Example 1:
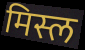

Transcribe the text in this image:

मिस्ल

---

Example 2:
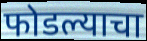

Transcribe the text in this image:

फोडल्याचा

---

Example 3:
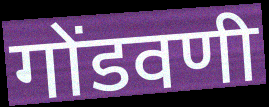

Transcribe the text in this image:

गोंडवणी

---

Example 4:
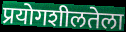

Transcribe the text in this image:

प्रयोगशीलतेला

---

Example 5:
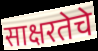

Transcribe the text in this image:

साक्षरतेचे